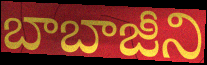
బాబాజీని